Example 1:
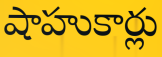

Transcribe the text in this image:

షాహుకార్లు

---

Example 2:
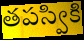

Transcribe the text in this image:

తపస్వికి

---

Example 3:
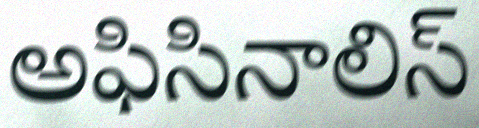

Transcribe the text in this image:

అఫిసినాలిస్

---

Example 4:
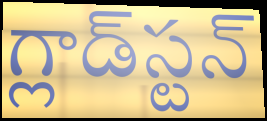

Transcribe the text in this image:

గ్లాడ్‌స్టన్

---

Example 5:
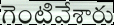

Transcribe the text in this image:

గెంటివేశారు